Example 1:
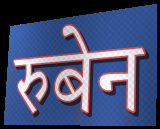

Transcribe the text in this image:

रुबेन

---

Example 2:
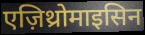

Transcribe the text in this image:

एज़िथ्रोमाइसिन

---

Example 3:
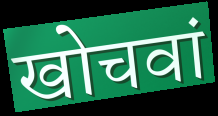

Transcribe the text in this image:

खोचवां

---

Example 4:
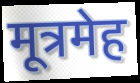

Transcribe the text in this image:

मूत्रमेह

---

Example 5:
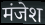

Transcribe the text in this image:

मंजेश